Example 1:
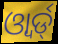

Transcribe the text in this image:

ଓ୍ୱାର୍ଡ୍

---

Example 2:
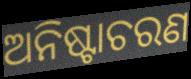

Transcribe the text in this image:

ଅନିଷ୍ଟାଚରଣ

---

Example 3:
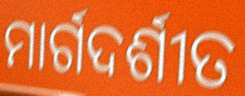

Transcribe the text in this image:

ମାର୍ଗଦର୍ଶୀତ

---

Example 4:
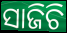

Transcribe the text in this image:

ସାଜିଚି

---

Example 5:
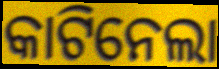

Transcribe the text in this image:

କାଟିନେଲା